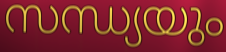
സന്ധ്യയും